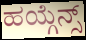
ಹಯ್ಗೆನ್ಸ್